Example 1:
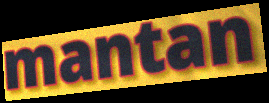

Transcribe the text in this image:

mantan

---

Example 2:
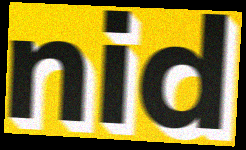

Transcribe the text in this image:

nid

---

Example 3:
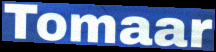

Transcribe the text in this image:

Tomaar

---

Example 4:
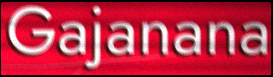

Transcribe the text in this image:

Gajanana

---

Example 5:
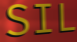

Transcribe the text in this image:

SIL